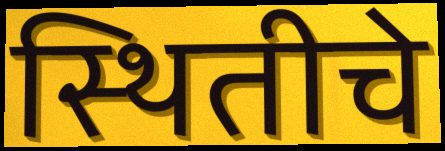
स्थितीचे